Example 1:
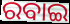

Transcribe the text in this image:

ରବାଇ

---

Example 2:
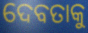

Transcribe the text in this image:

ଦେବତାକୁ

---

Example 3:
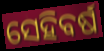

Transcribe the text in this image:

ସେହିବର୍ଷ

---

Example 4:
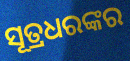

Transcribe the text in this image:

ସୂତ୍ରଧରଙ୍କର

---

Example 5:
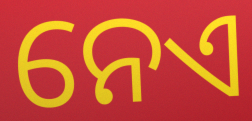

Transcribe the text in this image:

ନେଏ